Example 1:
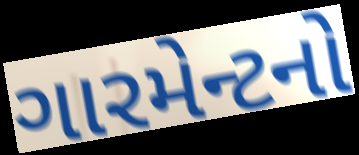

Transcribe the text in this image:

ગારમેન્ટનો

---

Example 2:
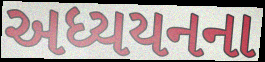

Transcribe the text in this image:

અધ્યયનના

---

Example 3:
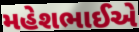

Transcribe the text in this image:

મહેશભાઈએ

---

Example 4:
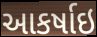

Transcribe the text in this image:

આકર્ષાઇ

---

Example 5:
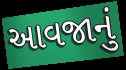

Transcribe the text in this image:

આવજાનું